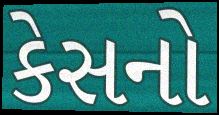
કેસનો